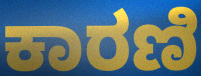
ಕಾರಣಿ